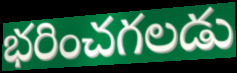
భరించగలడు